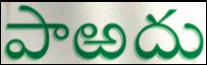
పాఱదు